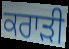
ਕਰਾੜੀ